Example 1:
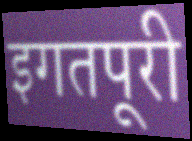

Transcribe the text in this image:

इगतपूरी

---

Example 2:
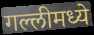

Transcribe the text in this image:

गल्लीमध्ये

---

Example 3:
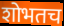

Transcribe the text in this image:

शोभतच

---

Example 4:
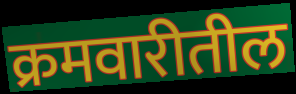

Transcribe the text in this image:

क्रमवारीतील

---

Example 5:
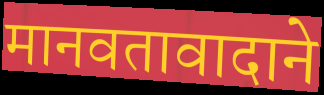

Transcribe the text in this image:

मानवतावादाने